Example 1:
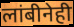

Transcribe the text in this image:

लांबीनेही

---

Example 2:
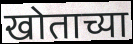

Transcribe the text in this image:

खोताच्या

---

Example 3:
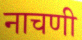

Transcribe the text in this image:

नाचणी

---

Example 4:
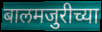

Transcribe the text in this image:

बालमजुरीच्या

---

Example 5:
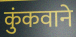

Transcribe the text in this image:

कुंकवाने